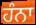
ਹੰਨਾ